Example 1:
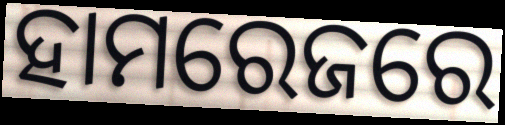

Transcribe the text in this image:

ହାମରେଜରେ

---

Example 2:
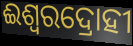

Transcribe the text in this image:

ଈଶ୍ଵରଦ୍ରୋହୀ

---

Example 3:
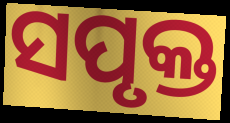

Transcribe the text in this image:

ସପୃକ୍ତ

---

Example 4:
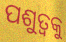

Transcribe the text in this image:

ପଶୁତ୍ୱକୁ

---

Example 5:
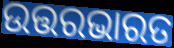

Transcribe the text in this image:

ଉତ୍ତରଭାରତ